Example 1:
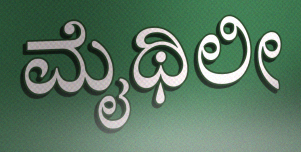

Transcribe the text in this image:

ಮೈಥಿಲೀ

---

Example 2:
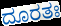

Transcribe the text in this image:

ದೂರತಃ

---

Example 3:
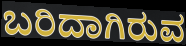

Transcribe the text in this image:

ಬರಿದಾಗಿರುವ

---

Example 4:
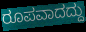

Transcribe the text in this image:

ರೂಪವಾದದ್ದು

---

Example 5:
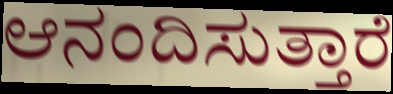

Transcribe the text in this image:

ಆನಂದಿಸುತ್ತಾರೆ